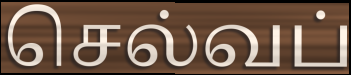
செல்வப்